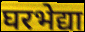
घरभेद्या